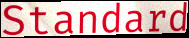
Standard